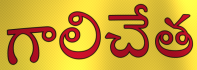
గాలిచేత